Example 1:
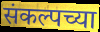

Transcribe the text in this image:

संकल्पच्या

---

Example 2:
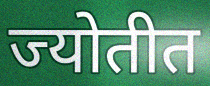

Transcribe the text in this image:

ज्योतीत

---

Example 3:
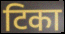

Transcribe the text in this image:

टिका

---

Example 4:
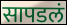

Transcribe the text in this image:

सापडलं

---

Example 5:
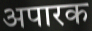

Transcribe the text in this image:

अपारक